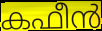
കഫീൻ